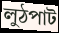
লুঠপাট